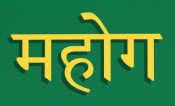
महोग